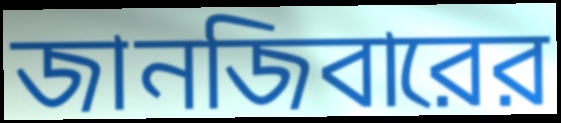
জানজিবারের